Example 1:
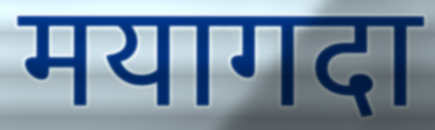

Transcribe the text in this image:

मयागदा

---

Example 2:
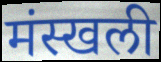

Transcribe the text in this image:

मंस्खली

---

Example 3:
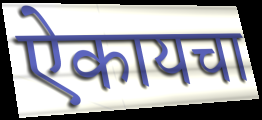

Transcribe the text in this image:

ऐकायचा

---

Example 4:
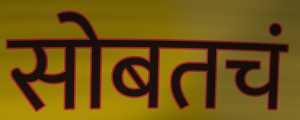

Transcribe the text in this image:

सोबतचं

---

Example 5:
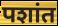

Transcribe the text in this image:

पशांत